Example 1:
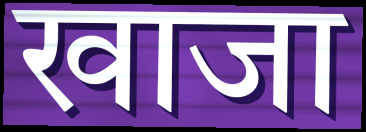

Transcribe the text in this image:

खाजा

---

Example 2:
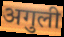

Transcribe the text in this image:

अगुली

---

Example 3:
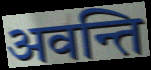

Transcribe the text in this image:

अवन्ति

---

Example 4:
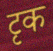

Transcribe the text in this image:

टृक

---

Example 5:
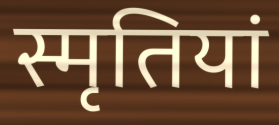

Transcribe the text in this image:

स्मृतियां